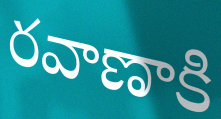
రవాణాకి